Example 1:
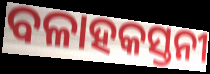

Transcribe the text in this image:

ବଳାହକସ୍ତନୀ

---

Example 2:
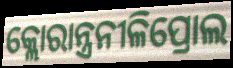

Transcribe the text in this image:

କ୍ଲୋରାନ୍ତ୍ରନୀଳିପ୍ରୋଲ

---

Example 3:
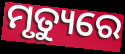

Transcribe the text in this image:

ମୃତ୍ୟୁରେ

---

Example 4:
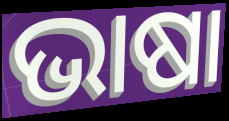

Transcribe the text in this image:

ଭାଷା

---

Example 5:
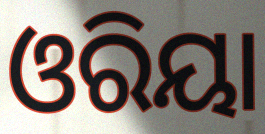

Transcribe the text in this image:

ଓରିୟା